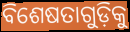
ବିଶେଷତାଗୁଡ଼ିକୁ